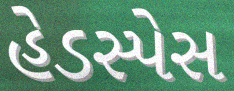
હેડસ્પેસ